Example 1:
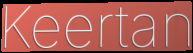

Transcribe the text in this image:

Keertan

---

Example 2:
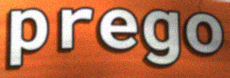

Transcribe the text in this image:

prego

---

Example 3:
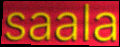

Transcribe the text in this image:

saala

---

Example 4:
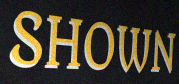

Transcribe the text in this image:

SHOWN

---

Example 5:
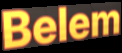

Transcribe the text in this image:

Belem